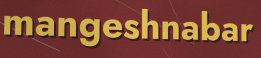
mangeshnabar